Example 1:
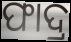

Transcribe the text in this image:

ଫାଦ୍ର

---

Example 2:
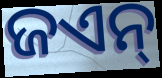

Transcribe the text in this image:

ଜଏନ୍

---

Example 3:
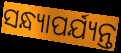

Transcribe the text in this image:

ସନ୍ଧ୍ୟାପର୍ଯ୍ୟନ୍ତ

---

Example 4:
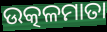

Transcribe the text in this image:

ଉତ୍କଳମାତା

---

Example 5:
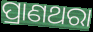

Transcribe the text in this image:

ପ୍ରାଣଥରା